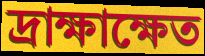
দ্রাক্ষাক্ষেত